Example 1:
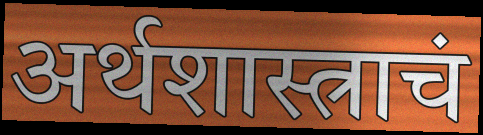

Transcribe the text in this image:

अर्थशास्त्राचं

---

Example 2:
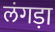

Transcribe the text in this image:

लंगड़ा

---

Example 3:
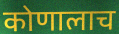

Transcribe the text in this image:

कोणालाच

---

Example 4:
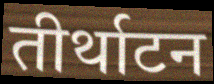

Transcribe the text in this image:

तीर्थाटन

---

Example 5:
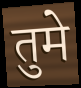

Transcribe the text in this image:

तुमे